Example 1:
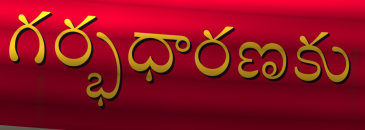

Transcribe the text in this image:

గర్భధారణకు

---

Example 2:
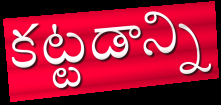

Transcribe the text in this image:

కట్టడాన్ని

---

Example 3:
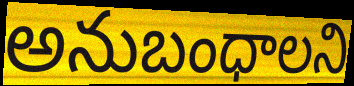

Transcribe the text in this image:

అనుబంధాలని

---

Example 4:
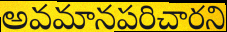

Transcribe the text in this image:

అవమానపరిచారని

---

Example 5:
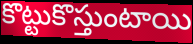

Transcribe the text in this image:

కొట్టుకొస్తుంటాయి